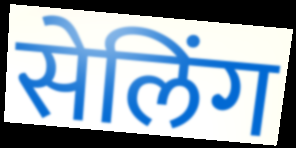
सेलिंग